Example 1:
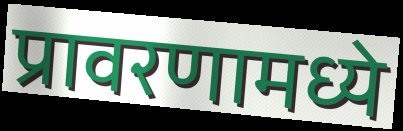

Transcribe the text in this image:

प्रावरणामध्ये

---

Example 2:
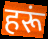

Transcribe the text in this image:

हरूं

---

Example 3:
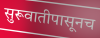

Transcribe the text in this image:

सुरूवातीपासूनच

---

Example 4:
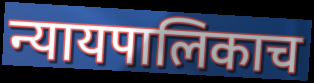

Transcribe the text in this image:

न्यायपालिकाच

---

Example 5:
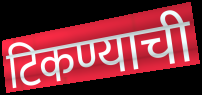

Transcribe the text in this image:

टिकण्याची